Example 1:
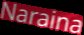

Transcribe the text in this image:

Naraina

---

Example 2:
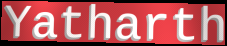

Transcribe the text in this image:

Yatharth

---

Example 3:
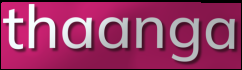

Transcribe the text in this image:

thaanga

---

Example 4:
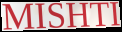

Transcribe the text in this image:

MISHTI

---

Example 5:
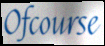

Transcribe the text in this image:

Ofcourse